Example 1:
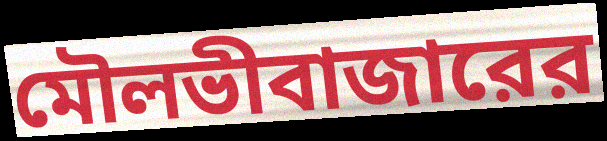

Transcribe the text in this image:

মৌলভীবাজারের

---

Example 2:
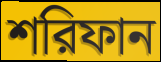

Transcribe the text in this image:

শরিফান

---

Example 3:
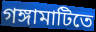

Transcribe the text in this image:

গঙ্গামাটিতে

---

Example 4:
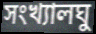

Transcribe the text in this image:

সংখ্যালঘু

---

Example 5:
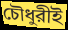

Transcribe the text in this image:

চৌধুরীই